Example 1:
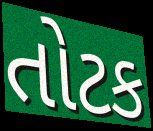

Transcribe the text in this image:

તોટક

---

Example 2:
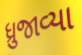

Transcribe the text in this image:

ધ્રુજાવ્યા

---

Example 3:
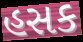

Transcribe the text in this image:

હસક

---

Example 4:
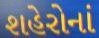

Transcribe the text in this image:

શહેરોનાં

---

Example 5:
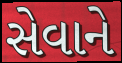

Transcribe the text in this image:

સેવાને